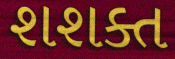
શશક્ત